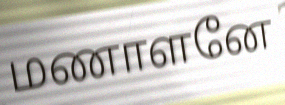
மணாளனே